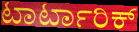
ಟಾರ್ಟಾರಿಕ್